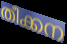
തീക്കന